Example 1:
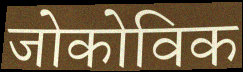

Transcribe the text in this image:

जोकोविक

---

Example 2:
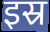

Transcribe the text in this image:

इस्र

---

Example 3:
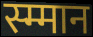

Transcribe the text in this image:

स्म्मान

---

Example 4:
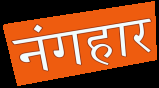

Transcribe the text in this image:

नंगहार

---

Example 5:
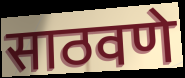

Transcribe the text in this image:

साठवणे